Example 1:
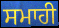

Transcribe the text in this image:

ਸਮਾਹੀ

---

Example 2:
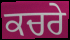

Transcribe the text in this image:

ਕਚਰੇ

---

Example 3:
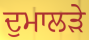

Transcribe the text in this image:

ਦੁਮਾਲੜੇ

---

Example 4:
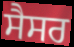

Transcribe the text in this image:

ਸੈਸਰ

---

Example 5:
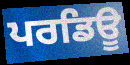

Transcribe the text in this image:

ਪਰਡਿਊ